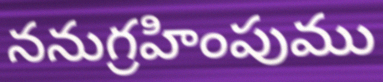
ననుగ్రహింపుము